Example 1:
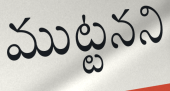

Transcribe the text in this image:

ముట్టనని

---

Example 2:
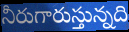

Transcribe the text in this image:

నీరుగారుస్తున్నది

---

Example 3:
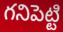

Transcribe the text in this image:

గనిపెట్టి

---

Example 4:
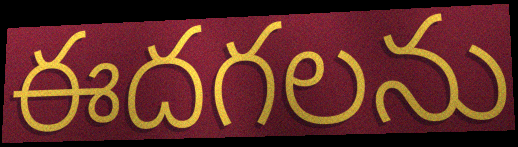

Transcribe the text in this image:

ఈదగలను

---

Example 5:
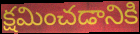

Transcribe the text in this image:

క్షమించడానికి